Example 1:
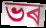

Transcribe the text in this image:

ভৰ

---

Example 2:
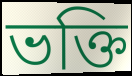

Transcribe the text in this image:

ভক্তি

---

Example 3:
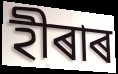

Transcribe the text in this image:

হীৰাৰ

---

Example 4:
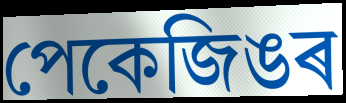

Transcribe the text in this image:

পেকেজিঙৰ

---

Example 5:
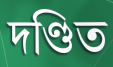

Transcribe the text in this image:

দণ্ডিত